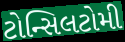
ટોન્સિલટોમી